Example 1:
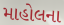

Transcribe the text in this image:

માહોલના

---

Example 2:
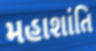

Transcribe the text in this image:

મહાશાંતિ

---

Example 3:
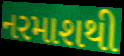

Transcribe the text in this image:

નરમાશથી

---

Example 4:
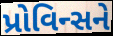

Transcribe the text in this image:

પ્રોવિન્સને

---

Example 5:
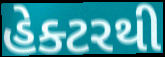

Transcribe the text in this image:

હેક્ટરથી